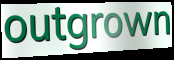
outgrown